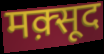
मक़्सूद